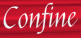
Confine